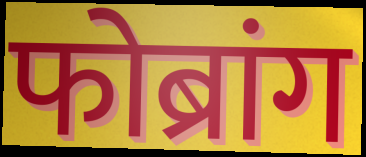
फोब्रांग